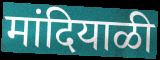
मांदियाळी